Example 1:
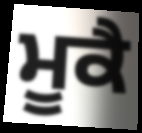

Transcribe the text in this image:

ਮੂਕੈ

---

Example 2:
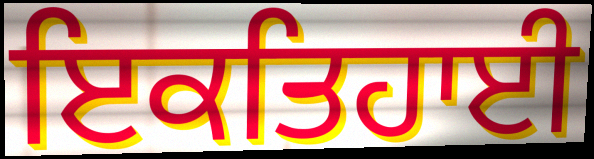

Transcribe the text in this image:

ਇਕਤਿਹਾਈ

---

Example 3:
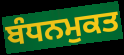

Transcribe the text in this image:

ਬੰਧਨਮੁਕਤ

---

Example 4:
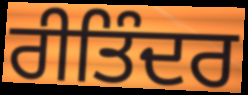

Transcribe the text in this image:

ਰੀਤਿੰਦਰ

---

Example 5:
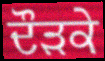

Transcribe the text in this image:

ਦੌੜਕੇ